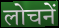
लोचनें